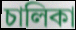
চালিকা